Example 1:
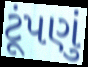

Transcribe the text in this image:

ટૂંપણું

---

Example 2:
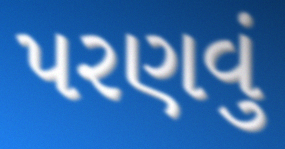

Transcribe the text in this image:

પરણવું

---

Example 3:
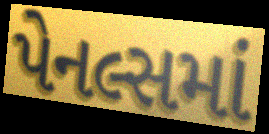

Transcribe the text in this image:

પેનલ્સમાં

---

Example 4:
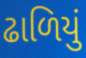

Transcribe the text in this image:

ઢાળિયું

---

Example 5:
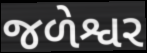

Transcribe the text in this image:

જળેશ્વર